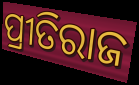
ପ୍ରୀତିରାଜ